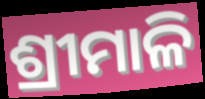
ଶ୍ରୀମାଳି